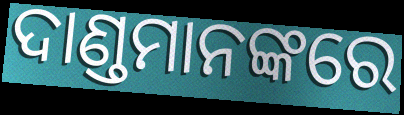
ଦାଣ୍ଡମାନଙ୍କରେ